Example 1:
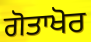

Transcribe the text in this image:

ਗੋਤਾਖੋਰ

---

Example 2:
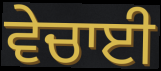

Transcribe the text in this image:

ਵੇਚਾਈ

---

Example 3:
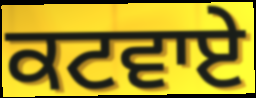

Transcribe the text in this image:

ਕਟਵਾਏ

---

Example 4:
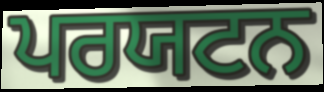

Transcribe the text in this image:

ਪਰਯਟਨ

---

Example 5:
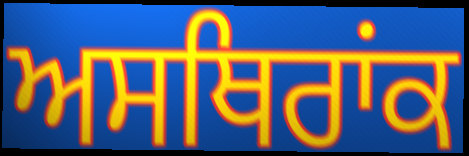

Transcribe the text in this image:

ਅਸਥਿਰਾਂਕ